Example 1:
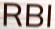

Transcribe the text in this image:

RBI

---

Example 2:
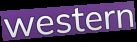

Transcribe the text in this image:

western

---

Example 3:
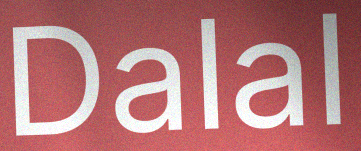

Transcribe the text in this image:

Dalal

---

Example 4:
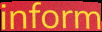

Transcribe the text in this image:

inform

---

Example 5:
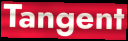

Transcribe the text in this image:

Tangent